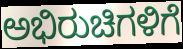
ಅಭಿರುಚಿಗಳಿಗೆ